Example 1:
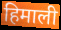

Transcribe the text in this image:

हिमाली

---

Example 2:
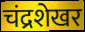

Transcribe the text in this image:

चंद्रशेखर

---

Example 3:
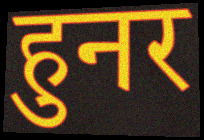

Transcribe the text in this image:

हुनर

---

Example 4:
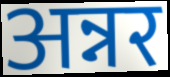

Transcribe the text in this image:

अन्नर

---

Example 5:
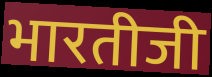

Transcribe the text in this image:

भारतीजी